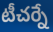
టీచర్నే